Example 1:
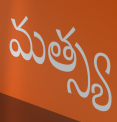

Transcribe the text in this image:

మత్స్య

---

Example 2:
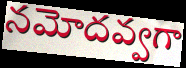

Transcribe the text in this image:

నమోదవ్వగా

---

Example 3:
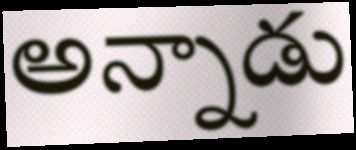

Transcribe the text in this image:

అన్నాడు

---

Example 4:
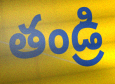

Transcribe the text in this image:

తండ్రి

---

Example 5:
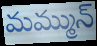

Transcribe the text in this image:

మమ్మున్